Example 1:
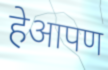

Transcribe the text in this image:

हेआपण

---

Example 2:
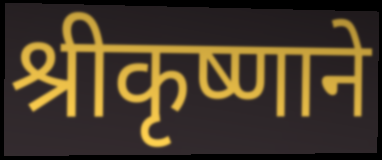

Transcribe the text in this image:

श्रीकृष्णाने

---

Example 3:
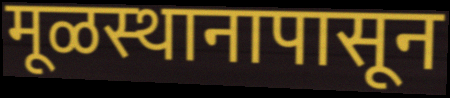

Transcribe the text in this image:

मूळस्थानापासून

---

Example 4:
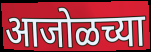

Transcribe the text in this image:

आजोळच्या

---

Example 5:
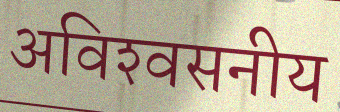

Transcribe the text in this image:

अविश्वसनीय